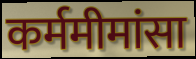
कर्ममीमांसा